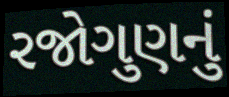
રજોગુણનું